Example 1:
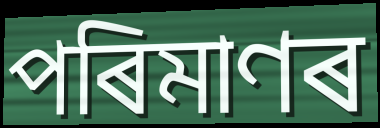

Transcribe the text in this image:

পৰিমাণৰ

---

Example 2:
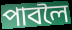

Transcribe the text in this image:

পাবলৈ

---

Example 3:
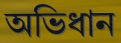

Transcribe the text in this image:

অভিধান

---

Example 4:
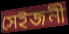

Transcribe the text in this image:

সেইজনী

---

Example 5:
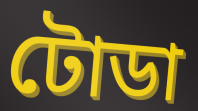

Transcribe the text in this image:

টোডা